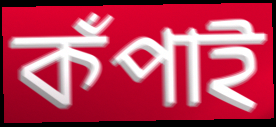
কঁপাই